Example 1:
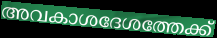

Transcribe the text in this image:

അവകാശദേശത്തേക്ക്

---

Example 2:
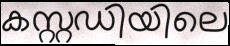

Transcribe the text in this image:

കസ്റ്റഡിയിലെ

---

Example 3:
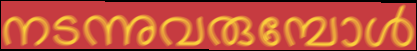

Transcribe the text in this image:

നടന്നുവരുമ്പോൾ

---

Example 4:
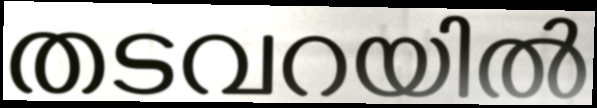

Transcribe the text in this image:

തടവറയിൽ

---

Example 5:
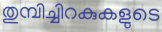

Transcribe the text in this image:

തുമ്പിച്ചിറകുകളുടെ